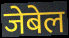
जेबेल